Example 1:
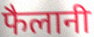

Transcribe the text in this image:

फैलानी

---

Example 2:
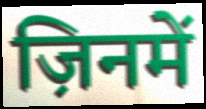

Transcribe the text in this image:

ज़िनमें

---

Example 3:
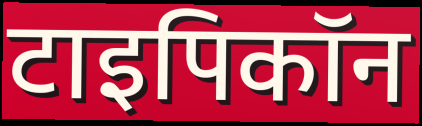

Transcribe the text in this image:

टाइपिकॉन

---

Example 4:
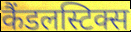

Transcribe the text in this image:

कैंडलस्टिक्स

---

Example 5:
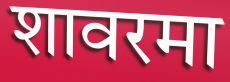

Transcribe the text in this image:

शावरमा